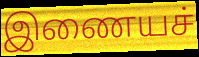
இணையச்